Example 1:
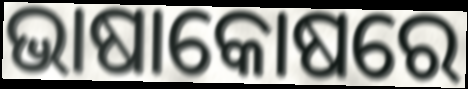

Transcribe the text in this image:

ଭାଷାକୋଷରେ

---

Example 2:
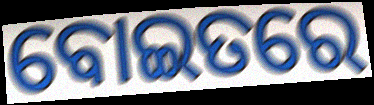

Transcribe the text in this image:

ବୋଇତରେ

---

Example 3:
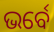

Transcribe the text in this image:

ଭର୍ବେ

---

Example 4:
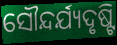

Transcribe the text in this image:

ସୌନ୍ଦର୍ଯ୍ୟଦୃଷ୍ଟି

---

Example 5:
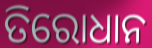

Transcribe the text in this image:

ତିରୋଧାନ